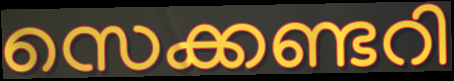
സെക്കണ്ടറി